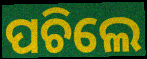
ପଚିଲେ